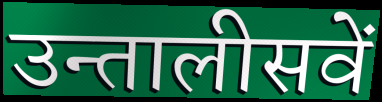
उन्तालीसवें